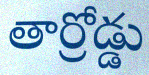
తార్రోడ్డు